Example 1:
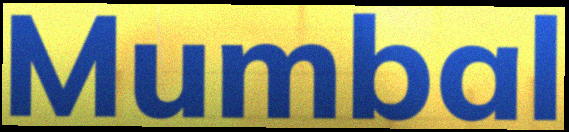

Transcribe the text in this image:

Mumbal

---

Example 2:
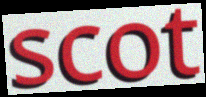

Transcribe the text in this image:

scot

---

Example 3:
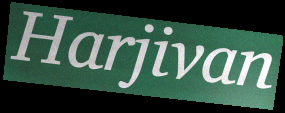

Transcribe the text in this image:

Harjivan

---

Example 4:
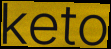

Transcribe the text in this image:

keto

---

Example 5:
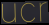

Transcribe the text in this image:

ucr